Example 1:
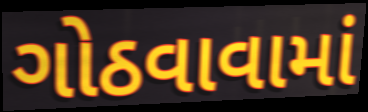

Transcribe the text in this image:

ગોઠવાવામાં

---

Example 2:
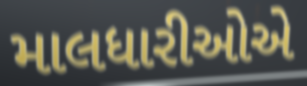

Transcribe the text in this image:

માલધારીઓએ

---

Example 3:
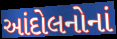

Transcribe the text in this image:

આંદોલનોનાં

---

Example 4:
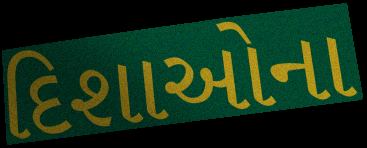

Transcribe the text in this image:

દિશાઓના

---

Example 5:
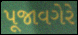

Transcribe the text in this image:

પૂજાવગેરે